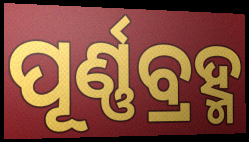
ପୂର୍ଣ୍ଣବ୍ରହ୍ମ